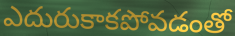
ఎదురుకాకపోవడంతో